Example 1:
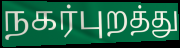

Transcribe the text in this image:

நகர்புறத்து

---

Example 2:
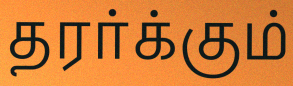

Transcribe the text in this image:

தரர்க்கும்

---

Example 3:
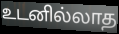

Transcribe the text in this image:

உடனில்லாத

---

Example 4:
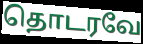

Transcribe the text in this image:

தொடரவே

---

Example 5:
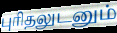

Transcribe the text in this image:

புரிதலுடனும்